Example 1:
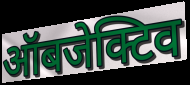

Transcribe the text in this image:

ऑबजेक्टिव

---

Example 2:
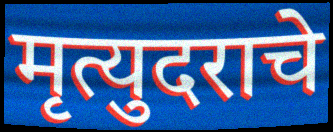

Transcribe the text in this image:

मृत्युदराचे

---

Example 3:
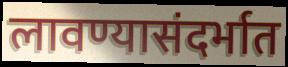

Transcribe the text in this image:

लावण्यासंदर्भात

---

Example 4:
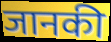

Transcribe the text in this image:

जानकी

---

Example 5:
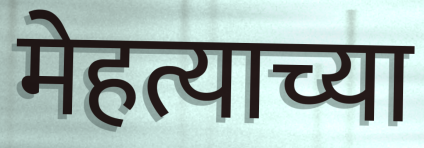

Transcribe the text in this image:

मेहत्याच्या